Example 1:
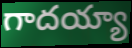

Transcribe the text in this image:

గాదయ్యా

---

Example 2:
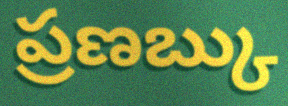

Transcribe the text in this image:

ప్రణబ్కు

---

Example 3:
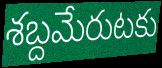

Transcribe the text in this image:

శబ్దమేరుటకు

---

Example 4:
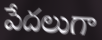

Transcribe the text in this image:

పేదలుగా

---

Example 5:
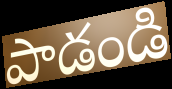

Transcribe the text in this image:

పాడండి